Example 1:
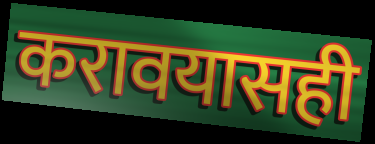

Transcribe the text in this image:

करावयासही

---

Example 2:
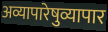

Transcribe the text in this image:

अव्यापारेषुव्यापार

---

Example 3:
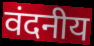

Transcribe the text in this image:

वंदनीय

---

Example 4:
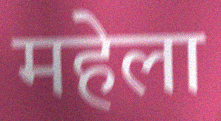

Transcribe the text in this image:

महेला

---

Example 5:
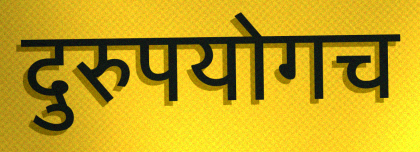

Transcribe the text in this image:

दुरुपयोगच